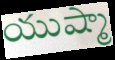
యుష్మా